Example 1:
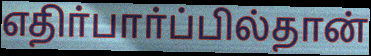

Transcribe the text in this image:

எதிர்பார்ப்பில்தான்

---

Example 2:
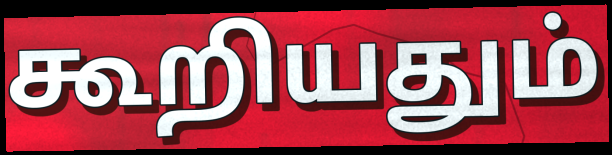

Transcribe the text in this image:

கூறியதும்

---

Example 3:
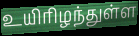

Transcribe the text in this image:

உயிரிழந்துள்ள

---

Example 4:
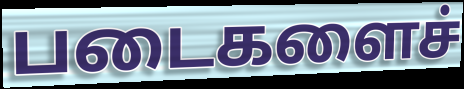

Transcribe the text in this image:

படைகளைச்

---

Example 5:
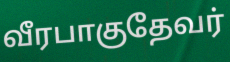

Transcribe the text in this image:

வீரபாகுதேவர்